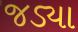
જડ્યા